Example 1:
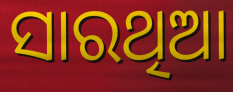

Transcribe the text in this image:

ସାରଥିଆ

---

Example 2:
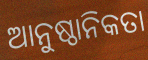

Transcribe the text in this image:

ଆନୁଷ୍ଠାନିକତା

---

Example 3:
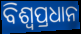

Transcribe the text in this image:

ବିଶ୍ୱପ୍ରଧାନ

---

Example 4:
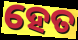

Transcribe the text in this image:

ହେତ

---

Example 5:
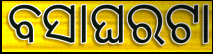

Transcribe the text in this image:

ବସାଘରଟା